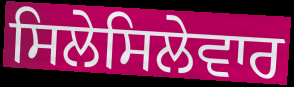
ਸਿਲੇਸਿਲੇਵਾਰ